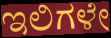
ಇಲಿಗಳೇ